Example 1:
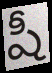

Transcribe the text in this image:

షీ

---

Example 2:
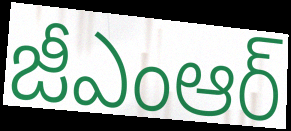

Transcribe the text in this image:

జీఎంఆర్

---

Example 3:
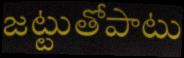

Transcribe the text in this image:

జట్టుతోపాటు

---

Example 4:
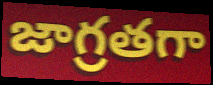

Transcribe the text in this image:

జాగ్రతగా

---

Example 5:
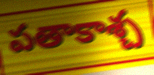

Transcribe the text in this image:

పతాకాశ్చ